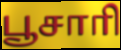
பூசாரி